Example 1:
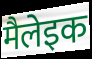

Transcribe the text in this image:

मैलेइक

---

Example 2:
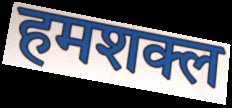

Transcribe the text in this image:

हमशक्ल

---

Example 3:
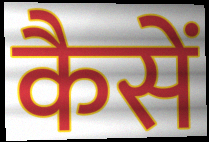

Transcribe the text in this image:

कैसें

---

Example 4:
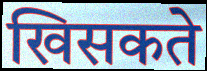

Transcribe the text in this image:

खिसकते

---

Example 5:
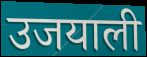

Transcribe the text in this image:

उजयाली